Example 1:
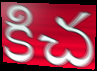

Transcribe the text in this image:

కిచ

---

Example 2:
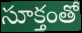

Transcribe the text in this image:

సూక్తంతో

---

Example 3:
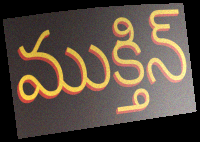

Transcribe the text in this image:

ముక్తిన్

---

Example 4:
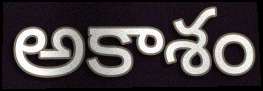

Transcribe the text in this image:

అకాశం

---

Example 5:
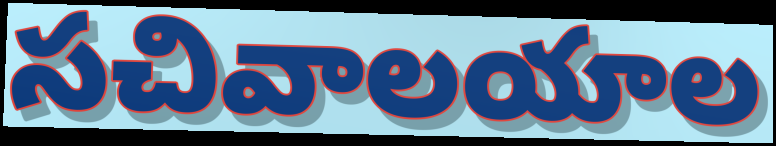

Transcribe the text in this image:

సచివాలయాల